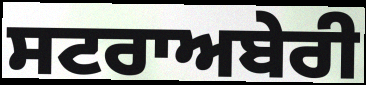
ਸਟਰਾਅਬੇਰੀ